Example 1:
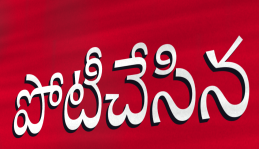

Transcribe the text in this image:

పోటీచేసిన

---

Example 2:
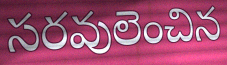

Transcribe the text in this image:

సరవులెంచిన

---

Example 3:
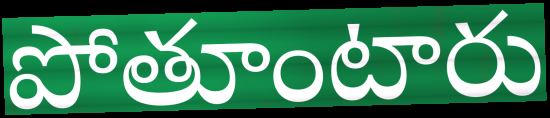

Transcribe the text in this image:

పోతూంటారు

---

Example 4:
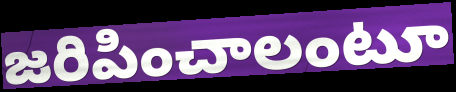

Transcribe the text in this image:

జరిపించాలంటూ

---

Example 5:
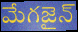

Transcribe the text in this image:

మేగజైన్